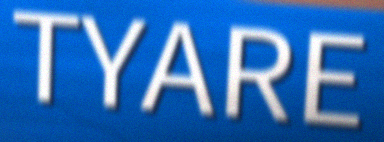
TYARE